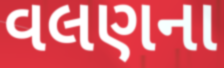
વલણના